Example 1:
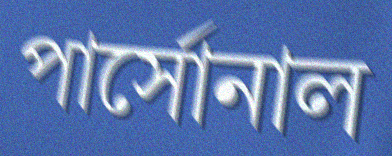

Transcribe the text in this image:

পার্সোনাল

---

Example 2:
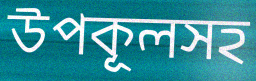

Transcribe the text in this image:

উপকূলসহ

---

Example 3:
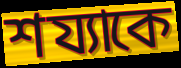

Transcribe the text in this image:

শয্যাকে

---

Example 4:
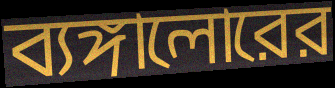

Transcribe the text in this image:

ব্যঙ্গালোরের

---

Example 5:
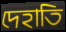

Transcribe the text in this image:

দেহাতি